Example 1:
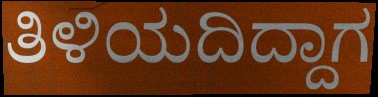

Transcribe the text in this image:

ತಿಳಿಯದಿದ್ದಾಗ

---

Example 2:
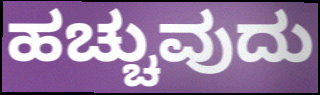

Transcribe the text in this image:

ಹಚ್ಚುವುದು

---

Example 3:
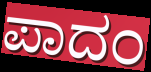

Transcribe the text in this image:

ಪಾದಂ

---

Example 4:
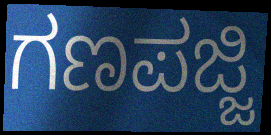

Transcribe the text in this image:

ಗಣಪಜ್ಜಿ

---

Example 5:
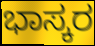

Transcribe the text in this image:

ಭಾಸ್ಕರ